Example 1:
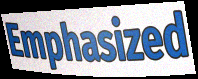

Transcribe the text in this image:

Emphasized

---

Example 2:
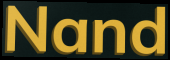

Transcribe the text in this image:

Nand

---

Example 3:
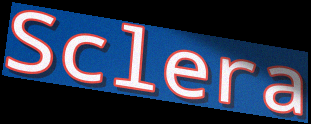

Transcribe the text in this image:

Sclera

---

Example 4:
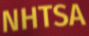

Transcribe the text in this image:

NHTSA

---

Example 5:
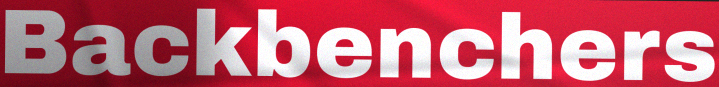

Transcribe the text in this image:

Backbenchers